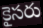
కైసరు